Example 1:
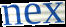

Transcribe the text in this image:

nex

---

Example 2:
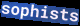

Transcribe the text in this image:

sophists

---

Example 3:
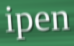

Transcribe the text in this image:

ipen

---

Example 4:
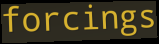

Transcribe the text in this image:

forcings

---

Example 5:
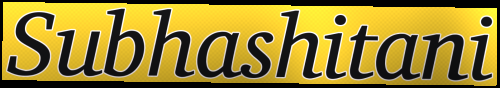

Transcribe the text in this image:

Subhashitani